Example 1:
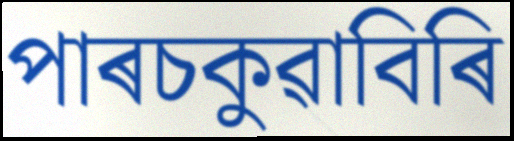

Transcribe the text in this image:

পাৰচকুৱাবিৰি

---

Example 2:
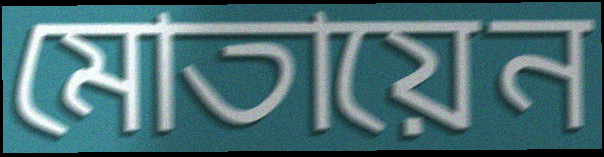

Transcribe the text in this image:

মোতায়েন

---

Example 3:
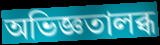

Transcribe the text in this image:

অভিজ্ঞতালব্ধ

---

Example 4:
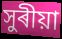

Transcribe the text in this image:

সুৰীয়া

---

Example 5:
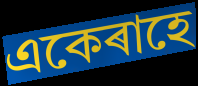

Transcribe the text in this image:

একেৰাহে